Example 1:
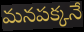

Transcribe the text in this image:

మనపక్కనే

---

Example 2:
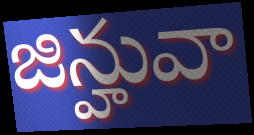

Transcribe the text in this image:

జిన్హువా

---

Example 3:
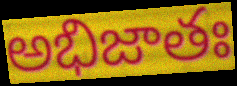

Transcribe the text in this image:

అభిజాతః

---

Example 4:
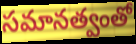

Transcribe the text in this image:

సమానత్వంతో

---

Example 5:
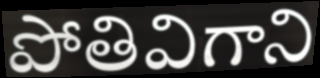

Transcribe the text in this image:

పోతివిగాని